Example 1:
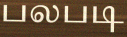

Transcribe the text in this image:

பலபடி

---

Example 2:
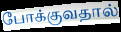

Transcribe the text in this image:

போக்குவதால்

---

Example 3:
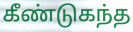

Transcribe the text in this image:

கீண்டுகந்த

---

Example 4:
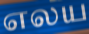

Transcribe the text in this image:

எலய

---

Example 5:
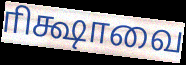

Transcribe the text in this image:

ரிக்ஷாவை